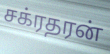
சக்ரதரன்